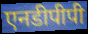
एनडीपीपी